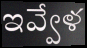
ఇవ్వేళ